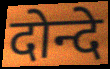
दोन्दे